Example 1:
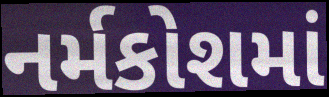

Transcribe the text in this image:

નર્મકોશમાં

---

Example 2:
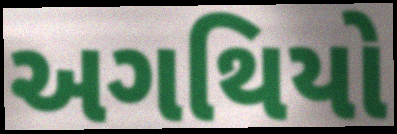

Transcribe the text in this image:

અગથિયો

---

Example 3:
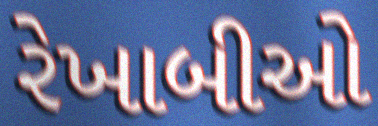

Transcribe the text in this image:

રેખાબીઓ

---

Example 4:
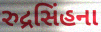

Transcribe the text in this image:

રુદ્રસિંહના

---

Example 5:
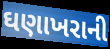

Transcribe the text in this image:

ઘણાખરાની